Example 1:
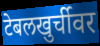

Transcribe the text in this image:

टेबलखुर्चीवर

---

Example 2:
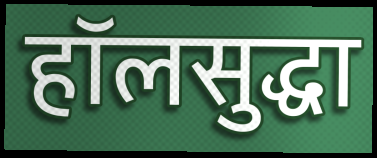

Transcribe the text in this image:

हॉलसुद्धा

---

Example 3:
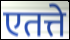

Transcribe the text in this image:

एतत्ते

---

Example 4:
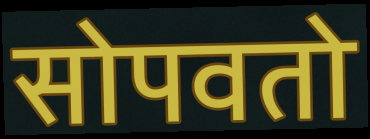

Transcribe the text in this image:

सोपवतो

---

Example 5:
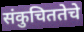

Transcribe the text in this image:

संकुचिततेचे